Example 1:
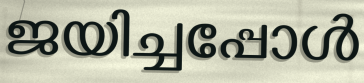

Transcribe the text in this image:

ജയിച്ചപ്പോൾ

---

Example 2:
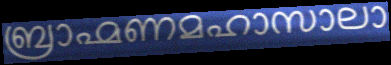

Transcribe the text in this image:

ബ്രാഹ്മണമഹാസാലാ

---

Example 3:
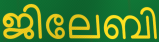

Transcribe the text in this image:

ജിലേബി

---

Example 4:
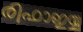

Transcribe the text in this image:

രിഫാഇയ്യ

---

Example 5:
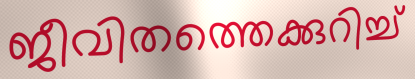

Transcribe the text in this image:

ജീവിതത്തെക്കുറിച്ച്